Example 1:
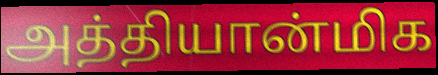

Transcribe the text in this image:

அத்தியான்மிக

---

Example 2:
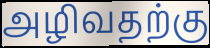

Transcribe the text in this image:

அழிவதற்கு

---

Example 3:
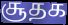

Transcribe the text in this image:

சூதக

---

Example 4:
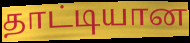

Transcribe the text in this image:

தாட்டியான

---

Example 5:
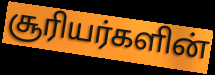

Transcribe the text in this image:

சூரியர்களின்